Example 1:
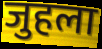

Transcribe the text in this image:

जुहला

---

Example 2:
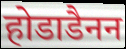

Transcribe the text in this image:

होडाडैनन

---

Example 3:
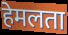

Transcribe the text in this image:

हेमलता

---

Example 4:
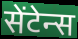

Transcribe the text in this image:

सेंटेन्स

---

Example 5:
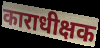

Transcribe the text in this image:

काराधीक्षक